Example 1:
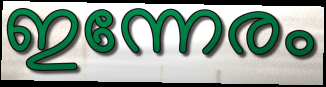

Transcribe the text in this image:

ഇന്നേരം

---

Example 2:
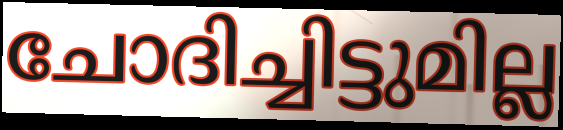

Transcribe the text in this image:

ചോദിച്ചിട്ടുമില്ല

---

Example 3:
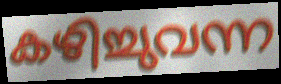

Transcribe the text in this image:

കഴിച്ചുവന്ന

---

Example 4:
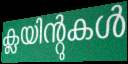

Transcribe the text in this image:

ക്ലയിന്റുകൾ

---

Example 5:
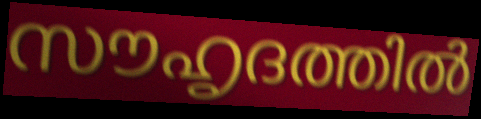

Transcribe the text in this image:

സൗഹൃദത്തിൽ